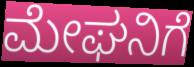
ಮೇಘನಿಗೆ